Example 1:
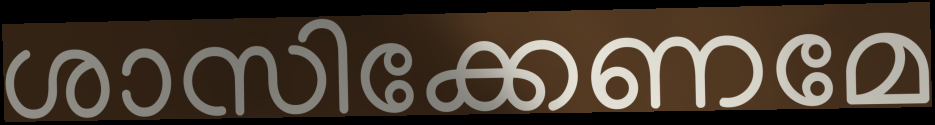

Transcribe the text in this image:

ശാസിക്കേണമേ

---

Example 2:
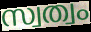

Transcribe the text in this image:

സ്വത്വം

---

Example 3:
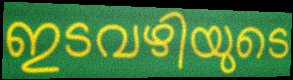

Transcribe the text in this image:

ഇടവഴിയുടെ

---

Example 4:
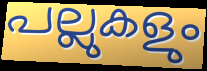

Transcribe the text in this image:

പല്ലുകളും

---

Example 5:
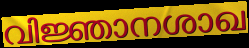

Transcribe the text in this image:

വിജ്ഞാനശാഖ